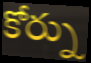
కోర్ను